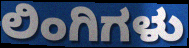
ಲಿಂಗಿಗಳು